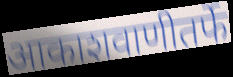
आकाशवाणीतर्फे